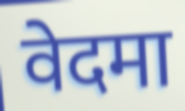
वेदमा